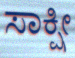
ಸಾಕ್ಷೀ